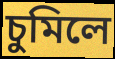
চুমিলে